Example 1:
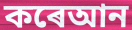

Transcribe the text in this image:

কৰেআন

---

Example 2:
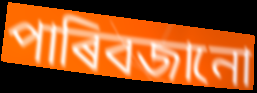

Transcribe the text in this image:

পাৰিবজানো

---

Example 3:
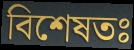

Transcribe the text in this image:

বিশেষতঃ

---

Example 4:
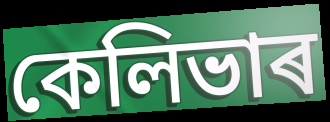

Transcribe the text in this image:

কেলিভাৰ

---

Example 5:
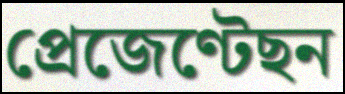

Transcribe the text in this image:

প্ৰেজেণ্টেছন